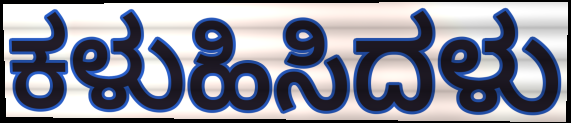
ಕಳುಹಿಸಿದಳು